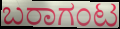
ಬರಾಗಂಟ